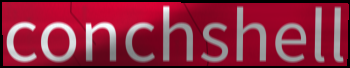
conchshell